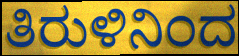
ತಿರುಳಿನಿಂದ